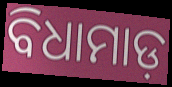
ବିଧାମାଡ଼